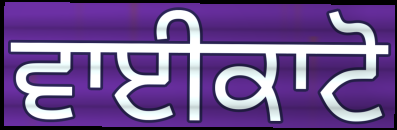
ਵਾਈਕਾਟੋ